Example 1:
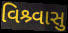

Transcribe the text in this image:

વિશ્ર્વાસુ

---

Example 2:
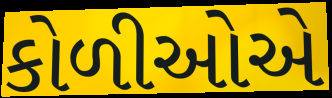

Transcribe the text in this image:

કોળીઓએ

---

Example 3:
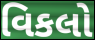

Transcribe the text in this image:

વિકલો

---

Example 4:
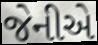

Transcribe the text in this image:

જેનીએ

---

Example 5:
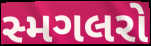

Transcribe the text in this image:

સ્મગલરો